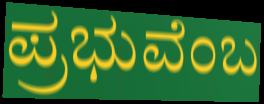
ಪ್ರಭುವೆಂಬ